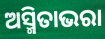
ଅସ୍ମିତାଭରା